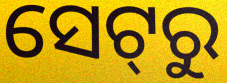
ସେଟ୍‌ରୁ